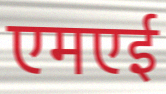
एमएई